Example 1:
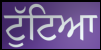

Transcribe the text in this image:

ਟੁੱਟਿਆ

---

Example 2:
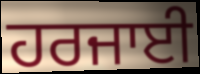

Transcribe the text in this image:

ਹਰਜਾਈ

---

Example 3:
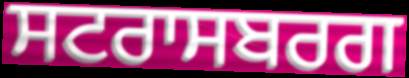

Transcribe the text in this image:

ਸਟਰਾਸਬਰਗ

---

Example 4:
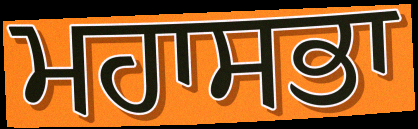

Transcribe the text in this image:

ਮਹਾਸਭਾ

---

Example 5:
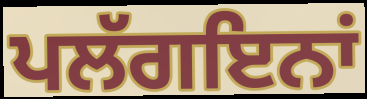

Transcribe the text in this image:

ਪਲੱਗਇਨਾਂ